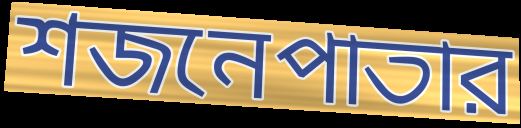
শজনেপাতার